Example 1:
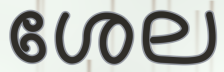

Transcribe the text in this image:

ശേല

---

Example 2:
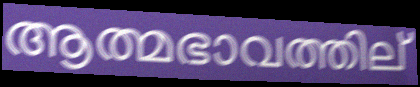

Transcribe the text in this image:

ആത്മഭാവത്തില്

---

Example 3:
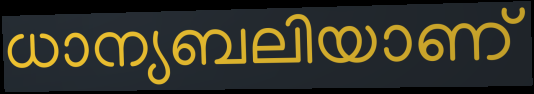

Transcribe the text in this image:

ധാന്യബലിയാണ്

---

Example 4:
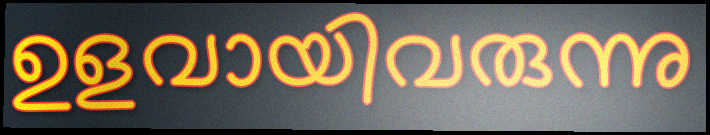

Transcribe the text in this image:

ഉളവായിവരുന്നു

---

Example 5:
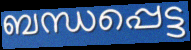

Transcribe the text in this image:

ബന്ധപ്പെട്ട